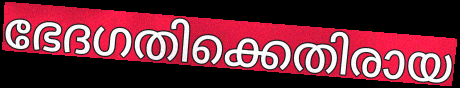
ഭേദഗതിക്കെതിരായ